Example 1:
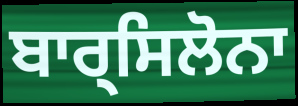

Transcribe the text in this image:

ਬਾਰ੍ਸਿਲੋਨਾ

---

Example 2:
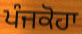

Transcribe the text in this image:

ਪੰਜਕੋਹਾ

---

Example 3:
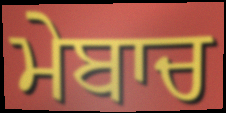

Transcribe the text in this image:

ਮੇਬਾਚ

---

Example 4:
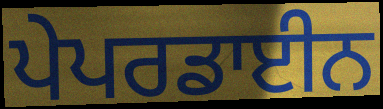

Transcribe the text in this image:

ਪੇਪਰਡਾਈਨ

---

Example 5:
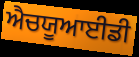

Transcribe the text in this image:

ਐਚਯੂਆਈਡੀ